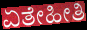
ಏತೇಹೀತಿ